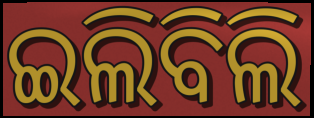
ଇଲିବିଲି